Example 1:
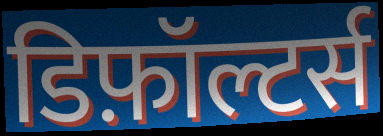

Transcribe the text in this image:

डिफ़ॉल्टर्स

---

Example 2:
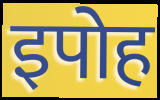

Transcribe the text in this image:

इपोह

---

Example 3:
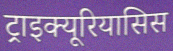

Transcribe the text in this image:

ट्राइक्यूरियासिस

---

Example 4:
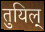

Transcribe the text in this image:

तुयिल्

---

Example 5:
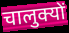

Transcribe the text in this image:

चालुक्यों